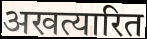
अखत्यारित